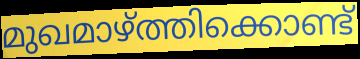
മുഖമാഴ്ത്തിക്കൊണ്ട്